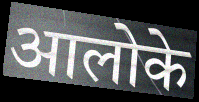
आलोके